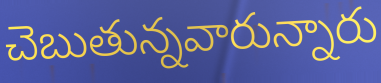
చెబుతున్నవారున్నారు